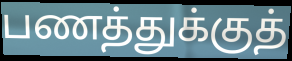
பணத்துக்குத்